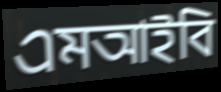
এমআইবি